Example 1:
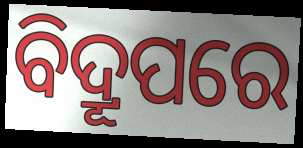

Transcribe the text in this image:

ବିଦ୍ରୂପରେ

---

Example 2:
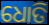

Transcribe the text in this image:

ଧୋତି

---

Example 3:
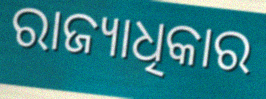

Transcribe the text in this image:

ରାଜ୍ୟାଧିକାର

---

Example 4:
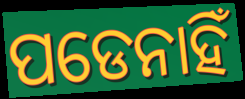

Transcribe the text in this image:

ପଡେନାହିଁ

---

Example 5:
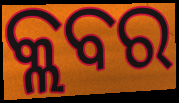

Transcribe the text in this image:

କ୍ଲବର